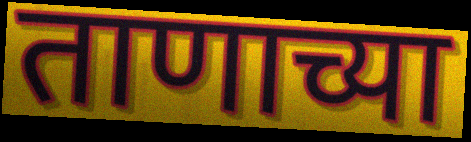
ताणाच्या